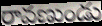
రావణుండు